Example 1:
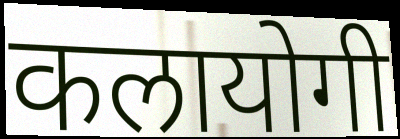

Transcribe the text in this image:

कलायोगी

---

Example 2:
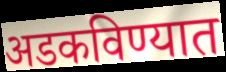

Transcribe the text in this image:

अडकविण्यात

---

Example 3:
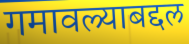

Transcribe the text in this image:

गमावल्याबद्दल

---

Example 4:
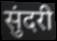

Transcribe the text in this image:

सुंदरी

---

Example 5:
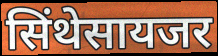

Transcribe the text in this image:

सिंथेसायजर